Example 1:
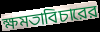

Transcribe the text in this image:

ক্ষমতাবিচারের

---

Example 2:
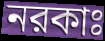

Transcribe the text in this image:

নরকাঃ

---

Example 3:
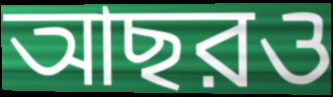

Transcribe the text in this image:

আছরও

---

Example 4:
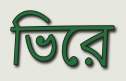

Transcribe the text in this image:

ভিরে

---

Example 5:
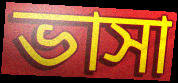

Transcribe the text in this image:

ভাসা